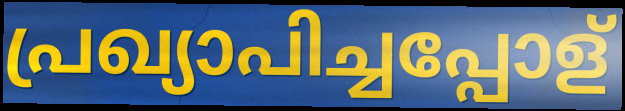
പ്രഖ്യാപിച്ചപ്പോള്